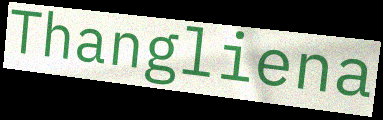
Thangliena